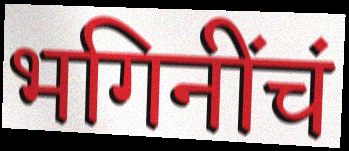
भगिनींचं